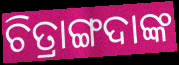
ଚିତ୍ରାଙ୍ଗଦାଙ୍କ